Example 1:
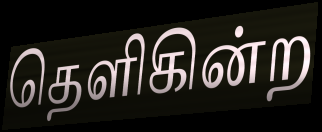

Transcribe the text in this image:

தெளிகின்ற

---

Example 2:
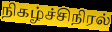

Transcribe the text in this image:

நிகழ்ச்சிநிரல்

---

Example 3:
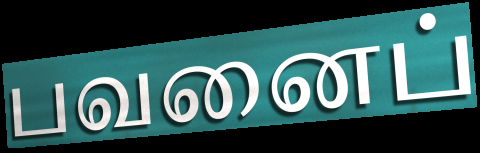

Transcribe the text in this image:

பவனைப்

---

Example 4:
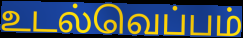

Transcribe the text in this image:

உடல்வெப்பம்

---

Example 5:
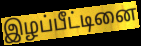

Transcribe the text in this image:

இழப்பீட்டினை